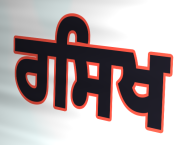
ਰਸਿਖ